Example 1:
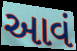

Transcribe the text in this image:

આવં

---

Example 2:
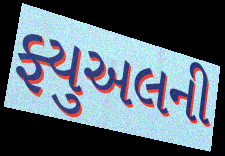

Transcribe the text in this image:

ફ્યુઅલની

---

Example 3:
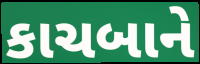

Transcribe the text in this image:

કાચબાને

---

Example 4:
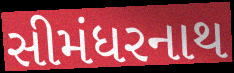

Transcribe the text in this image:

સીમંધરનાથ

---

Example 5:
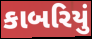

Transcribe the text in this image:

કાબરિયું